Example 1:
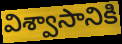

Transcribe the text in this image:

విశ్వాసానికి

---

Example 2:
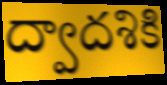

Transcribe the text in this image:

ద్వాదశికి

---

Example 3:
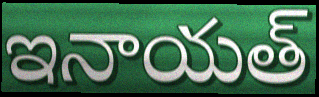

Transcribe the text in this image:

ఇనాయత్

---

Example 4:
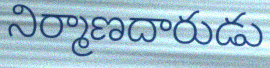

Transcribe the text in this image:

నిర్మాణదారుడు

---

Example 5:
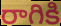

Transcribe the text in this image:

రాగికి